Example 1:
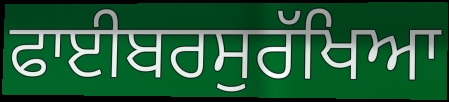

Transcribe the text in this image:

ਫਾਈਬਰਸੁਰੱਖਿਆ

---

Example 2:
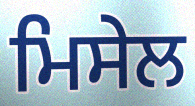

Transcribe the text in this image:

ਮਿਸੇਲ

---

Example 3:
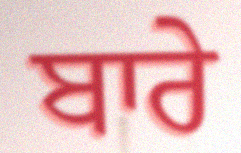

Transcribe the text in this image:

ਬਾਰੇ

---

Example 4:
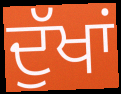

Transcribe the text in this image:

ਦੁੱਖਾਂ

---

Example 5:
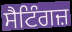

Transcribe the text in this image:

ਸੈਟਿੰਗਜ਼